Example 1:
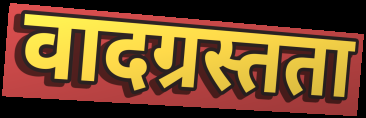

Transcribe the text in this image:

वादग्रस्तता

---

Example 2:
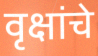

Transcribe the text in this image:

वृक्षांचे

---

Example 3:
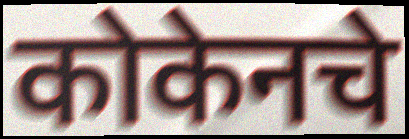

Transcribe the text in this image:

कोकेनचे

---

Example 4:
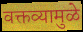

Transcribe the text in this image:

वक्तव्यामुळे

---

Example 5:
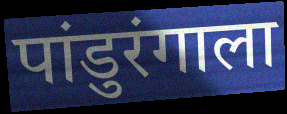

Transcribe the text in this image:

पांडुरंगाला